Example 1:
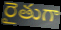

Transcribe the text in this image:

రైతుగా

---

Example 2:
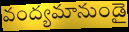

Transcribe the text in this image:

వంద్యమానుండై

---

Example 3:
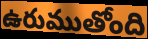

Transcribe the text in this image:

ఉరుముతోంది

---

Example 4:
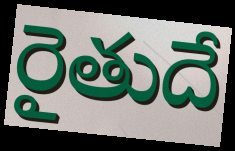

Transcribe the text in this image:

రైతుదే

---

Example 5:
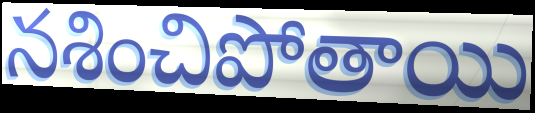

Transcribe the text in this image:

నశించిపోతాయి